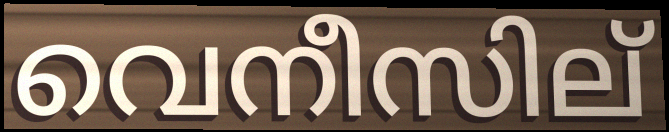
വെനീസില്